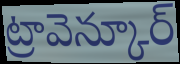
ట్రావెన్కూర్